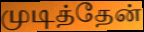
முடித்தேன்